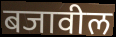
बजावील